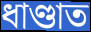
ধাণ্ডাত